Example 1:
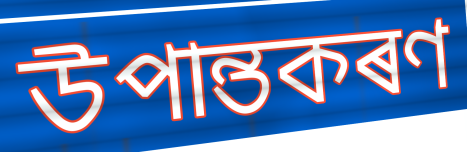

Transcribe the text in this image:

উপান্তকৰণ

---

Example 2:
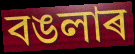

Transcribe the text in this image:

বঙলাৰ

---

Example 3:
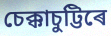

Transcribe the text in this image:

চেক্কাচুট্টিৰে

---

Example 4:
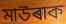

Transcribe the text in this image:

মাউৰাক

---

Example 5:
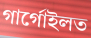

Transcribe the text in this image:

গাৰ্গোইলত